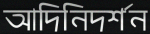
আদিনিদর্শন